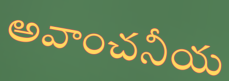
అవాంచనీయ